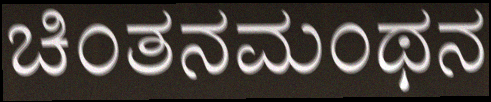
ಚಿಂತನಮಂಥನ